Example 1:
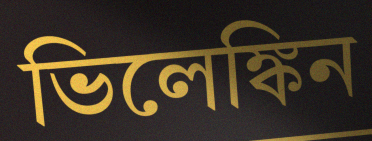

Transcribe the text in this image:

ভিলেঙ্কিন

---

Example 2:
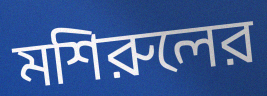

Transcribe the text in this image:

মশিরুলের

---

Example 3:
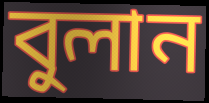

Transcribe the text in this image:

বুলান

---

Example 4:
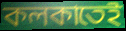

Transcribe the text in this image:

কলকাতেই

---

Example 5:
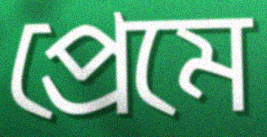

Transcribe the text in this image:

প্রেমে